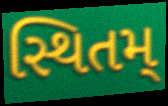
સ્થિતમ્